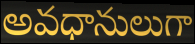
అవధానులుగా